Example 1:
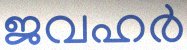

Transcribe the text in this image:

ജവഹർ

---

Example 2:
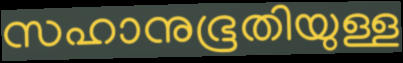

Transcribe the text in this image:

സഹാനുഭൂതിയുള്ള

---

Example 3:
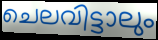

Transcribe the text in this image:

ചെലവിട്ടാലും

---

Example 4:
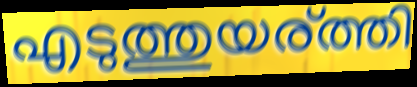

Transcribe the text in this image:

എടുത്തുയര്ത്തി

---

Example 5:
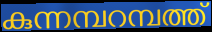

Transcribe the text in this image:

കുന്നമ്പറമ്പത്ത്